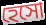
হেসো